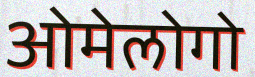
ओमेलोगो